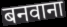
बनवाना